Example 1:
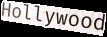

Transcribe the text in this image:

Hollywood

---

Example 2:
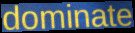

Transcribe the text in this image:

dominate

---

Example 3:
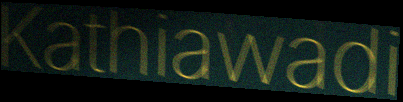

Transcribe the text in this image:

Kathiawadi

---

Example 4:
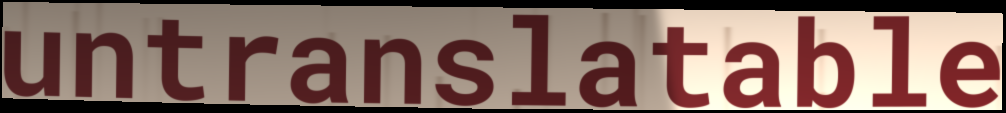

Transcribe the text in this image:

untranslatable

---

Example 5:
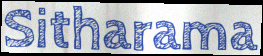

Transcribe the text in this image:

Sitharama